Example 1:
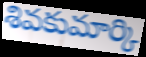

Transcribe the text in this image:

శివకుమార్కి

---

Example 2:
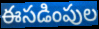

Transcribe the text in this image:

ఈసడింపుల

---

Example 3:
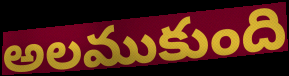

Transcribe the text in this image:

అలముకుంది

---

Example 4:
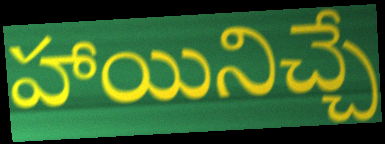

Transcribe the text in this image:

హాయినిచ్చే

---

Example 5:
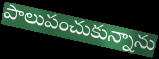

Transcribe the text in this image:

పాలుపంచుకున్నాను